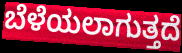
ಬೆಳೆಯಲಾಗುತ್ತದೆ